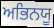
ਅਭਿਨਯੂ